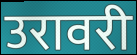
उरावरी